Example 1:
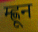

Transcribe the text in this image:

म्ह्णून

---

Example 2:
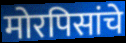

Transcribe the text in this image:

मोरपिसांचे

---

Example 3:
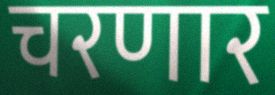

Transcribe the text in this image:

चरणार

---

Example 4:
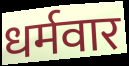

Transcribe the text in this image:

धर्मवार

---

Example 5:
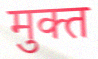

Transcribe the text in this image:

मुक्त